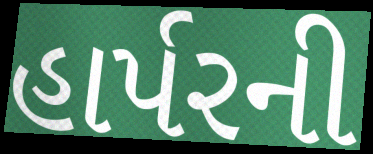
હાર્પરની